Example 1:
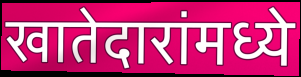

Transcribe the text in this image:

खातेदारांमध्ये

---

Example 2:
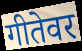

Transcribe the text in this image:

गीतेवर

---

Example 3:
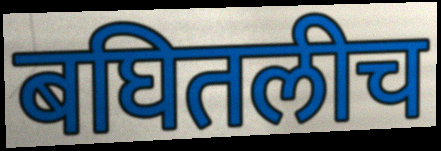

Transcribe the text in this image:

बघितलीच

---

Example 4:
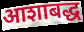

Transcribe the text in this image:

आशाबद्ध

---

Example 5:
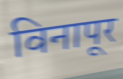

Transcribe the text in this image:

विनापूर